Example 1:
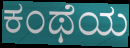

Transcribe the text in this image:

ಕಂಥೆಯ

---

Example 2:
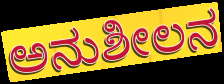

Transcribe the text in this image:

ಅನುಶೀಲನ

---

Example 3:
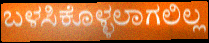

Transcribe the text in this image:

ಬಳಸಿಕೊಳ್ಳಲಾಗಲಿಲ್ಲ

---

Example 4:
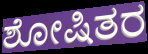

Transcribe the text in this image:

ಶೋಷಿತರ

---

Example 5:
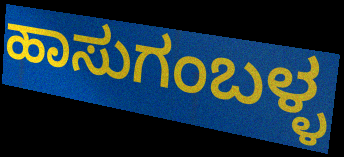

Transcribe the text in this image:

ಹಾಸುಗಂಬಳ್ಳ